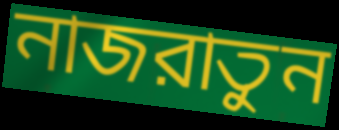
নাজরাতুন